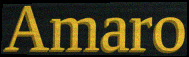
Amaro